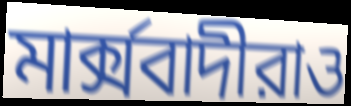
মার্ক্সবাদীরাও